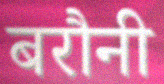
बरौनी